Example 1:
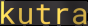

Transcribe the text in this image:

kutra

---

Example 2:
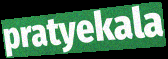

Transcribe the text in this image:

pratyekala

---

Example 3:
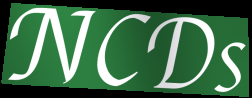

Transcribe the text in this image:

NCDs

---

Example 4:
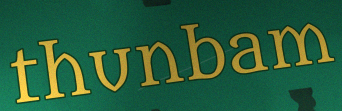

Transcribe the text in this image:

thunbam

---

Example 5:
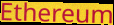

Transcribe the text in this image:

Ethereum